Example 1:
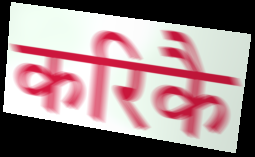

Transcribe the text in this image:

करिकै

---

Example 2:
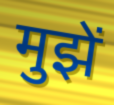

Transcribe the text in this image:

मुझें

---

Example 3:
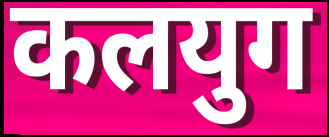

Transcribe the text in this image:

कलयुग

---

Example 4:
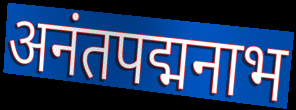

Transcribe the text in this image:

अनंतपद्मनाभ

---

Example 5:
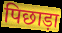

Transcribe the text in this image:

पिछाड़ा